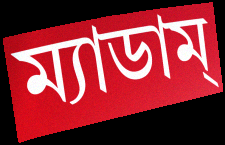
ম্যাডাম্